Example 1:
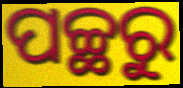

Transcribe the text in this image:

ପଚ୍ଛରୁ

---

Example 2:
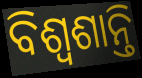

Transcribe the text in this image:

ବିଶ୍ୱଶାନ୍ତି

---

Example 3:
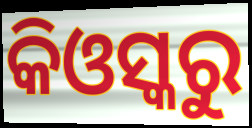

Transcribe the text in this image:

କିଓସ୍କରୁ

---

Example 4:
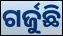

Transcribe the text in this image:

ଗର୍ଜୁଛି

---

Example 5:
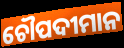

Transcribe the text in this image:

ଚୌପଦୀମାନ